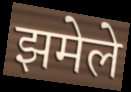
झमेले